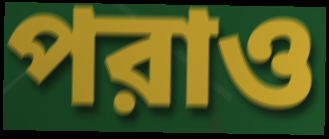
পরাও